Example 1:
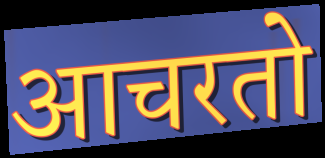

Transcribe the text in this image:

आचरतो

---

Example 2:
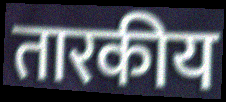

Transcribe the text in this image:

तारकीय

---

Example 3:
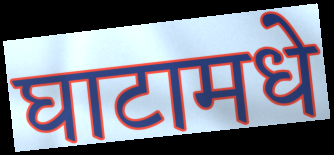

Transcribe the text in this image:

घाटामधे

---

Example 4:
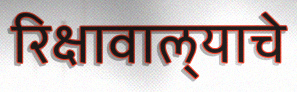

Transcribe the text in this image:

रिक्षावाल्याचे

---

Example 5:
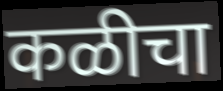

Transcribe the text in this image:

कळीचा